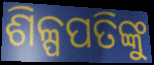
ଶିଳ୍ପପତିଙ୍କୁ